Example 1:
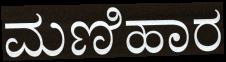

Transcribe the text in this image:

ಮಣಿಹಾರ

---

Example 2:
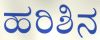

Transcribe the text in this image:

ಹರಿಶಿನ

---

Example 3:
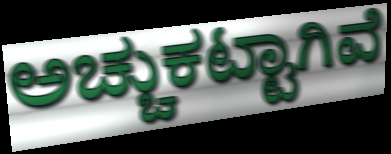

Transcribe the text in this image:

ಅಚ್ಚುಕಟ್ಟಾಗಿವೆ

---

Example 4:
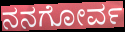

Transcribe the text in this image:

ನನಗೋರ್ವ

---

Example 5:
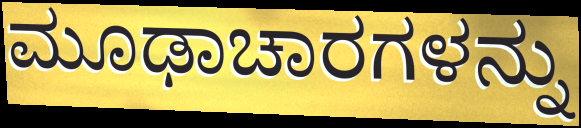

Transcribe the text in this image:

ಮೂಢಾಚಾರಗಳನ್ನು